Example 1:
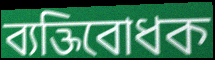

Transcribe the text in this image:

ব্যক্তিবোধক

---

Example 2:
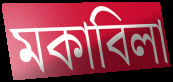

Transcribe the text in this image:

মকাবিলা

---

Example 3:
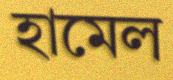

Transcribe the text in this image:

হামেল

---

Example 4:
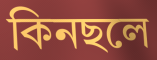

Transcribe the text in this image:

কিনছলে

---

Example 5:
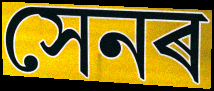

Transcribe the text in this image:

সেনৰ